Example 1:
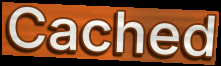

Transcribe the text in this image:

Cached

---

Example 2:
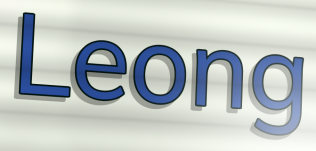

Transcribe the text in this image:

Leong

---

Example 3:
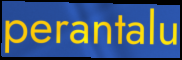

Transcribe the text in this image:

perantalu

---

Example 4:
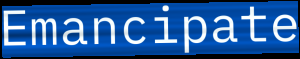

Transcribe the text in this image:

Emancipate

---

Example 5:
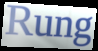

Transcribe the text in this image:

Rung